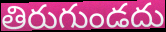
తిరుగుండదు